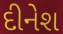
દીનેશ